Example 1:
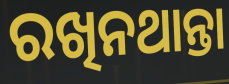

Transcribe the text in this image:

ରଖିନଥାନ୍ତା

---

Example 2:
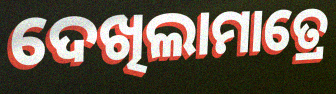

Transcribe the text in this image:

ଦେଖିଲାମାତ୍ରେ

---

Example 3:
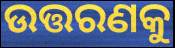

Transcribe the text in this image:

ଉତ୍ତରଣକୁ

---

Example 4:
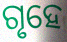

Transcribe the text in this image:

ଗୃହେ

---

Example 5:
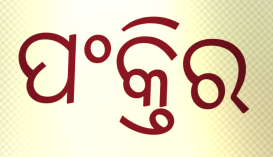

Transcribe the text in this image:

ପଂକ୍ତିର